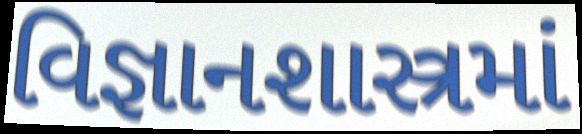
વિજ્ઞાનશાસ્ત્રમાં